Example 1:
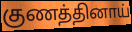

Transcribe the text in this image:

குணத்தினாய்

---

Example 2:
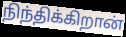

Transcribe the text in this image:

நிந்திக்கிறான்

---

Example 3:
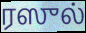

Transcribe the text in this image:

ரஸுல்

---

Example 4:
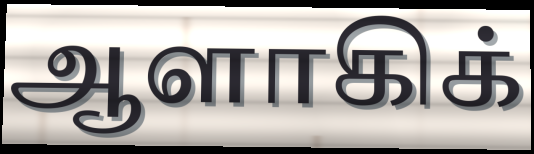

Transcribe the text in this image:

ஆளாகிக்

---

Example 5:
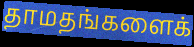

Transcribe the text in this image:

தாமதங்களைக்